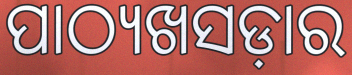
ପାଠ୍ୟଖସଡ଼ାର